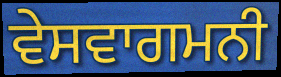
ਵੇਸਵਾਗਮਨੀ